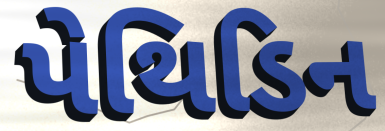
પેથિડિન